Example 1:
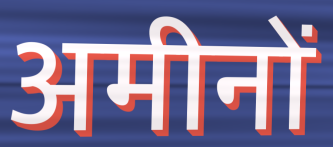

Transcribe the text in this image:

अमीनों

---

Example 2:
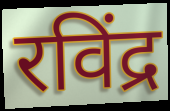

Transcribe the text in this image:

रविंद्र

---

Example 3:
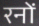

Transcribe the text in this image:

रनों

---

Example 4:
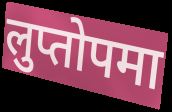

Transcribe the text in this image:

लुप्तोपमा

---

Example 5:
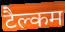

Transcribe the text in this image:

टैल्कम